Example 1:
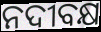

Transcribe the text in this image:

ନଦୀବକ୍ଷ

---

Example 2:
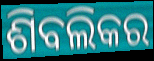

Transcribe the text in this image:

ଶିବଲିକର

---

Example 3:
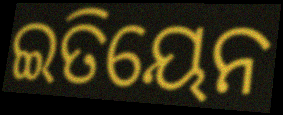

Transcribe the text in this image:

ଇତିୟେନ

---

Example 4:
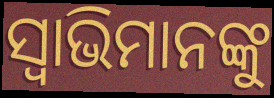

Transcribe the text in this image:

ସ୍ୱାଭିମାନଙ୍କୁ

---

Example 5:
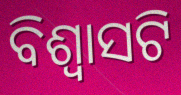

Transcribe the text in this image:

ବିଶ୍ୱାସଟି